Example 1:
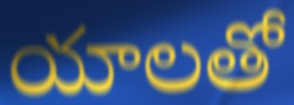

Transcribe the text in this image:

యాలతో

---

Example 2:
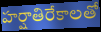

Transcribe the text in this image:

హర్షాతిరేకాలతో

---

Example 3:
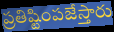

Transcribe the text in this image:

ప్రతిష్టింపజేస్తారు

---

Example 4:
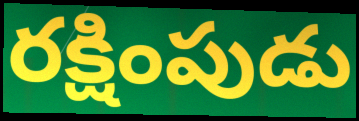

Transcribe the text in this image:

రక్షింపుడు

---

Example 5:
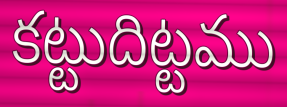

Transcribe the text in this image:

కట్టుదిట్టము